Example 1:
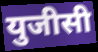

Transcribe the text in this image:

युजीसी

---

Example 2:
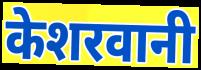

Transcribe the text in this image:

केशरवानी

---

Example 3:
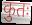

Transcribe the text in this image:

कुतः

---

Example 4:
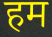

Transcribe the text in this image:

हम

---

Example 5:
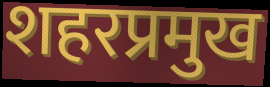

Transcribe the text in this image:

शहरप्रमुख